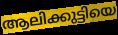
ആലിക്കുട്ടിയെ